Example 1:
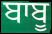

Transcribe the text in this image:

ਬਾਬੂ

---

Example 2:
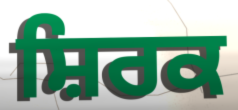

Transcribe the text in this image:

ਸ਼ਿਰਕ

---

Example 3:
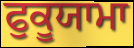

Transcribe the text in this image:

ਫੁਕੂਯਾਮਾ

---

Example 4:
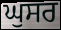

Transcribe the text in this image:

ਘੁਸਰ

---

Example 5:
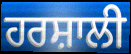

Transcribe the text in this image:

ਹਰਸ਼ਾਲੀ